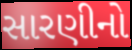
સારણીનો